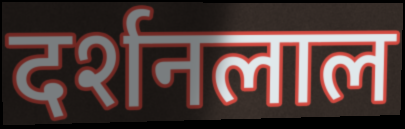
दर्शनलाल